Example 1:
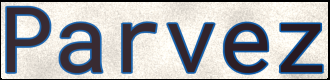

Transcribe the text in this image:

Parvez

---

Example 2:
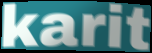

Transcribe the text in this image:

karit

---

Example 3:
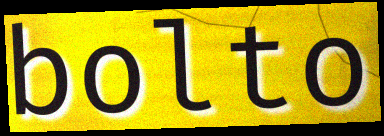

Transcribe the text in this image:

bolto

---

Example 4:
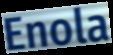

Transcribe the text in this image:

Enola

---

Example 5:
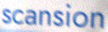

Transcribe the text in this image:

scansion